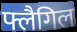
फ्लैगिल